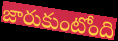
జారుకుంటోంది